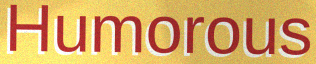
Humorous